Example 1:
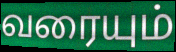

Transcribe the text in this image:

வரையும்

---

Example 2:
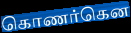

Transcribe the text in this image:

கொணர்கென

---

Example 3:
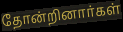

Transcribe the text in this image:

தோன்றினார்கள்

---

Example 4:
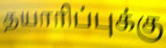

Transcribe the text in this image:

தயாரிப்புக்கு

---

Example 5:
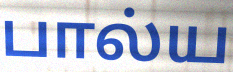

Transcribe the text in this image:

பால்ய